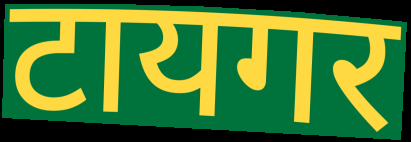
टायगर